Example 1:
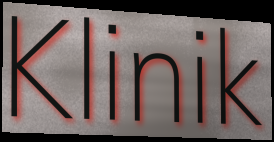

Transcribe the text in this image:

Klinik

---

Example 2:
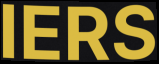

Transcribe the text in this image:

IERS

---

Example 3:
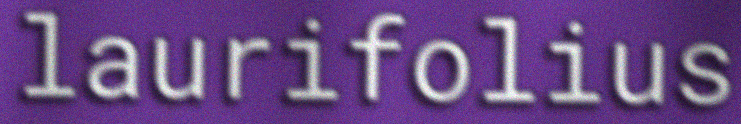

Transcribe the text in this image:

laurifolius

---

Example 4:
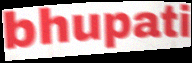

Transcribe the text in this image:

bhupati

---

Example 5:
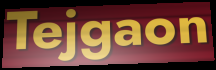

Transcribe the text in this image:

Tejgaon